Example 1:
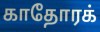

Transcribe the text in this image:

காதோரக்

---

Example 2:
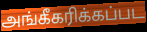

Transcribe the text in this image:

அங்கீகரிக்கப்பட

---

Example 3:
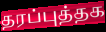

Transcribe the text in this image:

தரப்புத்தக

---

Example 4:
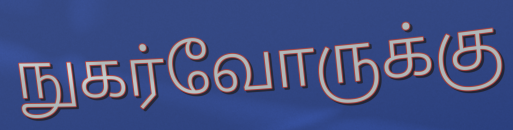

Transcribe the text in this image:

நுகர்வோருக்கு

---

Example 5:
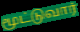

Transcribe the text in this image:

மூட்டுவார்